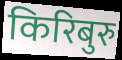
किरिबुरु